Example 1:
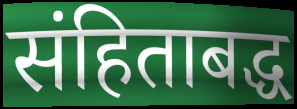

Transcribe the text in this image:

संहिताबद्ध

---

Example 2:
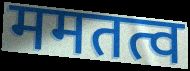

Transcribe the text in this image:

ममतत्व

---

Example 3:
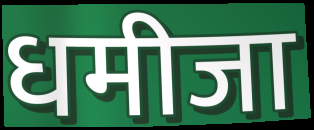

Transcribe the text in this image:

धमीजा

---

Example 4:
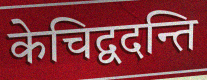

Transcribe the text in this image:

केचिद्वदन्ति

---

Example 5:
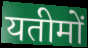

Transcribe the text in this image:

यतीमों